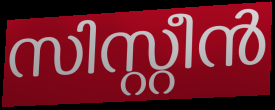
സിസ്റ്റീൻ